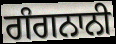
ਗੰਗਨਾਨੀ